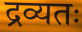
द्रव्यतः